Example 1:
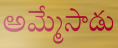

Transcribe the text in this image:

అమ్మేసాడు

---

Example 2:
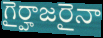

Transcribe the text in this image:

గైర్హాజరైనా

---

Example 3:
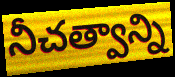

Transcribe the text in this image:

నీచత్వాన్ని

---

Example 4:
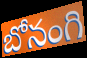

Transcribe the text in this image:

బోనంగి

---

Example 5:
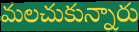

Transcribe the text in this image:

మలచుకున్నారు